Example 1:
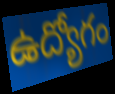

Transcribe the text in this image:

ఉద్యోగం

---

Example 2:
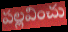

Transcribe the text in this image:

పల్లవించు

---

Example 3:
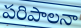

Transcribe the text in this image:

పరిపాలనా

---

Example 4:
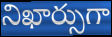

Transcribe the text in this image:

నిఖార్సుగా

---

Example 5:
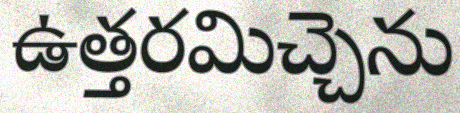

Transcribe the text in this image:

ఉత్తరమిచ్చెను